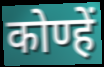
कोण्हें